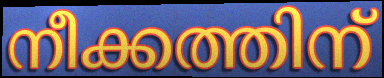
നീക്കത്തിന്